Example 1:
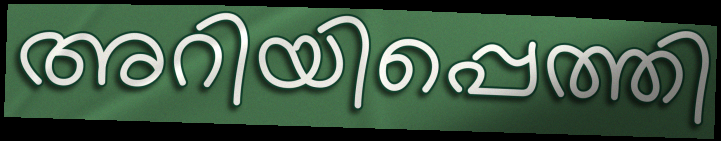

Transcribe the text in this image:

അറിയിപ്പെത്തി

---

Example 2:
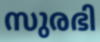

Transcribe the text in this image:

സുരഭി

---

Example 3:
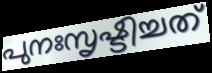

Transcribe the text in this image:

പുനഃസൃഷ്ടിച്ചത്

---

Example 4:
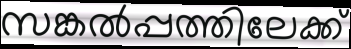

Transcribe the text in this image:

സങ്കൽപ്പത്തിലേക്ക്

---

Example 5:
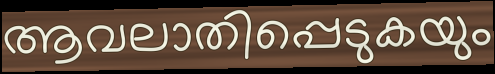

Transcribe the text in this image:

ആവലാതിപ്പെടുകയും